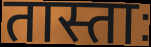
तास्ताः